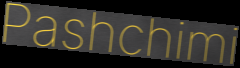
Pashchimi